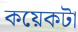
কয়েকটা